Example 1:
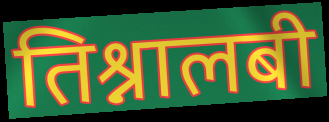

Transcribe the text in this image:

तिश्नालबी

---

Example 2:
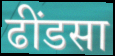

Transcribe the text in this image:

ढींडसा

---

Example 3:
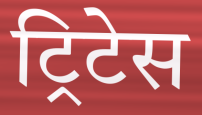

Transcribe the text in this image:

ट्रिटेस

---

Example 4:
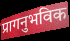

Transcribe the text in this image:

प्रागनुभविक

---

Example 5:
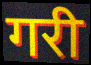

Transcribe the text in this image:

गरी